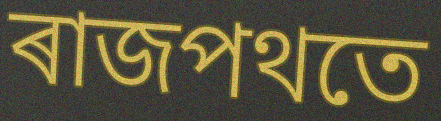
ৰাজপথতে